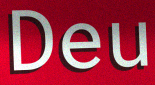
Deu